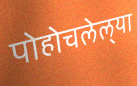
पोहोचलेल्या